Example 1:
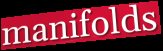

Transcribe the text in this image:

manifolds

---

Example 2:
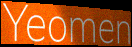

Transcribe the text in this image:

Yeomen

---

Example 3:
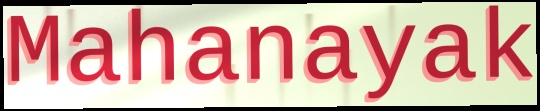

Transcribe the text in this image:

Mahanayak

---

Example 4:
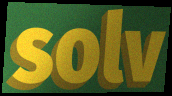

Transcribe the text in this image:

solv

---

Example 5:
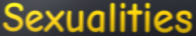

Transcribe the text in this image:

Sexualities